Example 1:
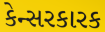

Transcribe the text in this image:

કેન્સરકારક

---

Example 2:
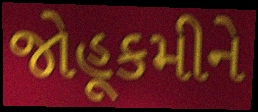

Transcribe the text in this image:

જોહૂકમીને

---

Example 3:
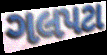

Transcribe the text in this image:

ગલપટા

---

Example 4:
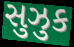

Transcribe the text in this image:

સુઝુક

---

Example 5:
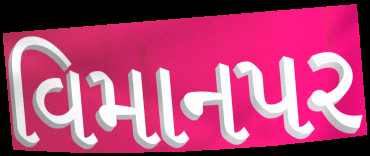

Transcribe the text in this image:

વિમાનપર